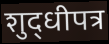
शुद्धीपत्र